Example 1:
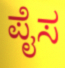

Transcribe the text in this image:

ಪೈಸ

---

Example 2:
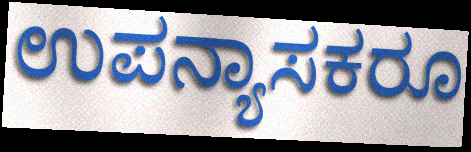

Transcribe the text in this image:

ಉಪನ್ಯಾಸಕರೂ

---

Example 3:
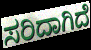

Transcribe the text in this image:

ಸರಿದಾಗಿದೆ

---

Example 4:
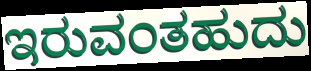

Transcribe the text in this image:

ಇರುವಂತಹುದು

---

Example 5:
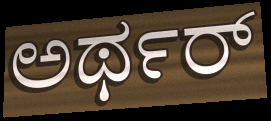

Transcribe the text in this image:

ಅರ್ಥರ್